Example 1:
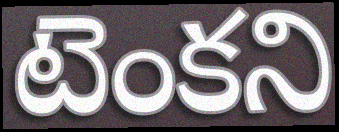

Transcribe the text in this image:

టెంకని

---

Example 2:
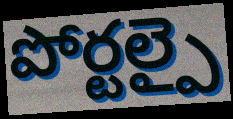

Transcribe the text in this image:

పోర్టల్పై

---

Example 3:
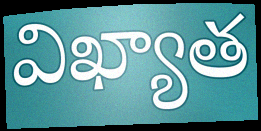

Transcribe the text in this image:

విఖ్యాత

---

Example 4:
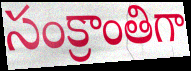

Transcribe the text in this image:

సంక్రాంతిగా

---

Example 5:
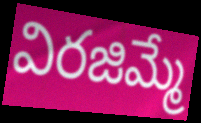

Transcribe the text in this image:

విరజిమ్మే